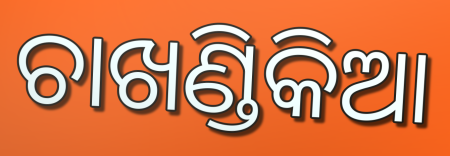
ଚାଖଣ୍ଡିକିଆ